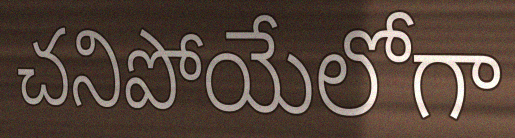
చనిపోయేలోగా